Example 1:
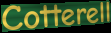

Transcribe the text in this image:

Cotterell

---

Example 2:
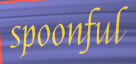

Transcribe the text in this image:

spoonful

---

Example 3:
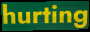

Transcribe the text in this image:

hurting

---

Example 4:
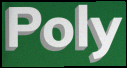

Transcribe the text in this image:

Poly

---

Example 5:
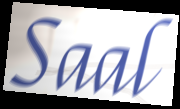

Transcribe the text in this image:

Saal